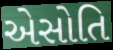
એસોતિ